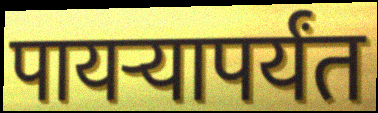
पायऱ्यापर्यंत